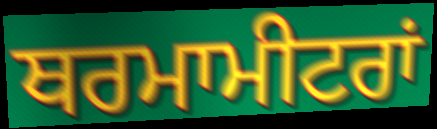
ਥਰਮਾਮੀਟਰਾਂ